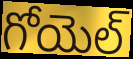
గోయెల్